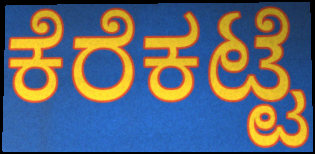
ಕೆರೆಕಟ್ಟೆ